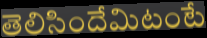
తెలిసిందేమిటంటే